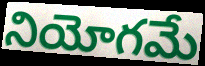
నియోగమే